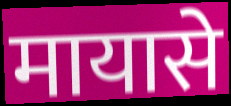
मायासे